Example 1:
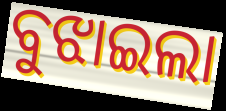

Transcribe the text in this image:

ବୁଝାଇଲା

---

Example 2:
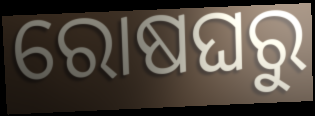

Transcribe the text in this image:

ରୋଷଘରୁ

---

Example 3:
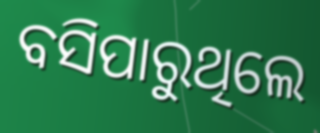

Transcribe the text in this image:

ବସିପାରୁଥିଲେ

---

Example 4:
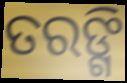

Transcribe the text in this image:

ତରଙ୍ଗି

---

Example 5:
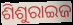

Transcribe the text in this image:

ଶିଶୁରାଇଜ